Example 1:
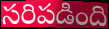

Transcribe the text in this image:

సరిపడింది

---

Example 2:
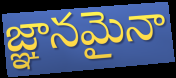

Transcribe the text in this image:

జ్ఞానమైనా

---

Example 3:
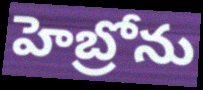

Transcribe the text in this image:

హెబ్రోను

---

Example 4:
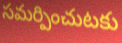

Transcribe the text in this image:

సమర్పించుటకు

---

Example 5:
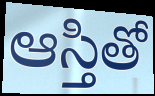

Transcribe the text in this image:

ఆస్తితో